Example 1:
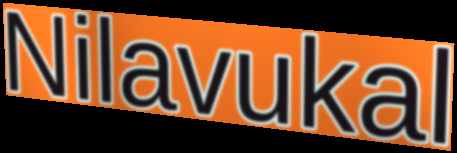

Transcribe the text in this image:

Nilavukal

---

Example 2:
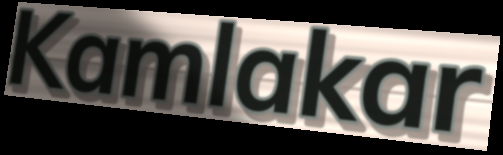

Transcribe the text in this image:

Kamlakar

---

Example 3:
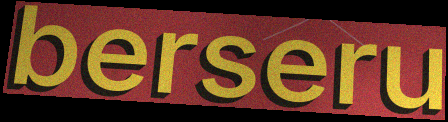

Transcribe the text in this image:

berseru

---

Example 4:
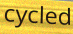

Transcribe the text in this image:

cycled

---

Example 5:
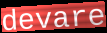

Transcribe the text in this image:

devare